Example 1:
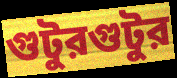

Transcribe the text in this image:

গুটুরগুটুর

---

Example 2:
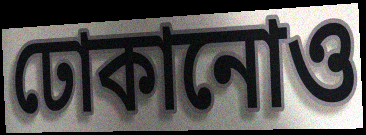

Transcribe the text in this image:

ঢোকানোও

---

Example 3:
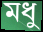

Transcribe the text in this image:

মধু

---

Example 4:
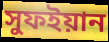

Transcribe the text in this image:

সুফইয়ান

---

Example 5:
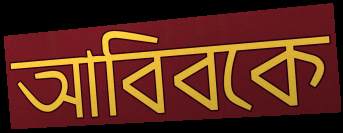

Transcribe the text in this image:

আবিবকে